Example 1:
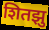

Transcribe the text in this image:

शितझु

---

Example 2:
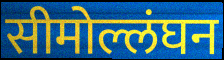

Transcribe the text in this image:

सीमोल्लंघन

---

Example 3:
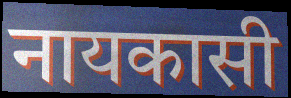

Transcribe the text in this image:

नायकासी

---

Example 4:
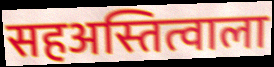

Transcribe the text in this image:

सहअस्तित्वाला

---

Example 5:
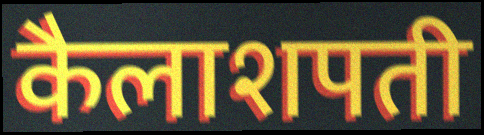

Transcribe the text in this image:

कैलाशपती